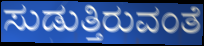
ಸುಡುತ್ತಿರುವಂತೆ